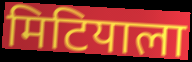
मिटियाला